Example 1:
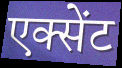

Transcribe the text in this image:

एक्सेंट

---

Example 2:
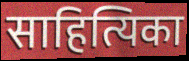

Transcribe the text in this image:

साहित्यिका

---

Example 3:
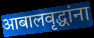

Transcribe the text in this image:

आबालवृद्धांना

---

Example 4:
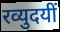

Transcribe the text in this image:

रव्युदयीं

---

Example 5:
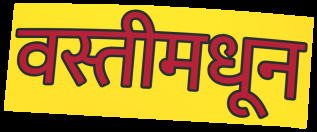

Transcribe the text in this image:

वस्तीमधून